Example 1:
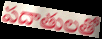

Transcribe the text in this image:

పదాతులతో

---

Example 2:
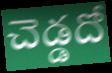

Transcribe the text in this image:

చెడ్డదో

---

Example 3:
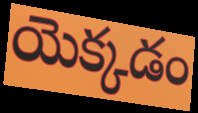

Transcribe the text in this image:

యెక్కడం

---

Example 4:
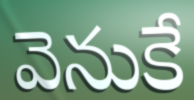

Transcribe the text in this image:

వెనుకే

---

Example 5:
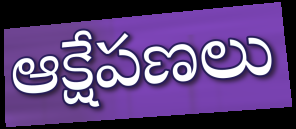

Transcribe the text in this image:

ఆక్షేపణలు